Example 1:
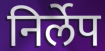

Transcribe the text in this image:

निर्लेप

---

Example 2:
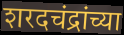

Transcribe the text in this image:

शरदचंद्रांच्या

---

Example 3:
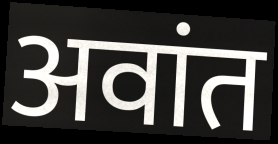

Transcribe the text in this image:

अवांत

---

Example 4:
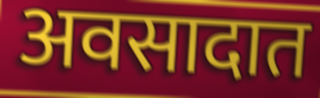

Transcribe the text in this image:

अवसादात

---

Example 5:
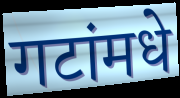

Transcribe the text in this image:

गटांमधे